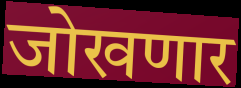
जोखणार